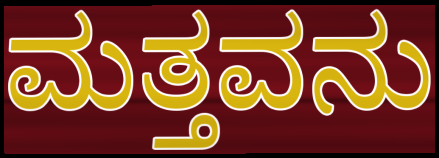
ಮತ್ತವನು